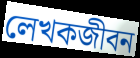
লেখকজীবন